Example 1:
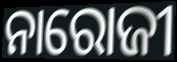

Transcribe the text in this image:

ନାରୋଜୀ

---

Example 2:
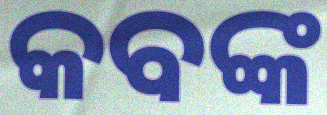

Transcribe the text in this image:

କବଙ୍କ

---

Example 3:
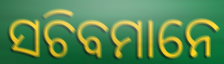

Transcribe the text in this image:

ସଚିବମାନେ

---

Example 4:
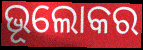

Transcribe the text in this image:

ଭୂଲୋକର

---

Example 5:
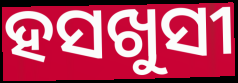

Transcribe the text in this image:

ହସଖୁସୀ